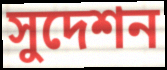
সুদেশন